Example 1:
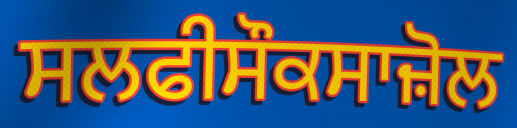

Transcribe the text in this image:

ਸਲਫੀਸੌਕਸਾਜ਼ੋਲ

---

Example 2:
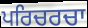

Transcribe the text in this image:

ਪਰਿਚਰਚਾ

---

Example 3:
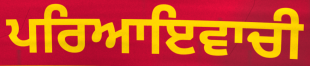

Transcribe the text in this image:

ਪਰਿਆਇਵਾਚੀ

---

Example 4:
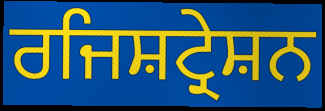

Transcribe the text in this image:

ਰਜਿਸ਼ਟ੍ਰੇਸ਼ਨ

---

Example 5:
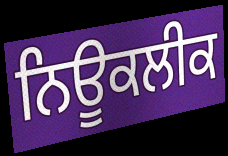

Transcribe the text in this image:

ਨਿਊਕਲੀਕ